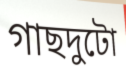
গাছদুটো